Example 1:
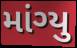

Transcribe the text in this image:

માંગ્યુ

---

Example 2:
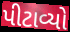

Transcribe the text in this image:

પીટાવ્યો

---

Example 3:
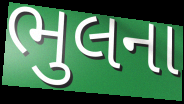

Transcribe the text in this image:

ભુલના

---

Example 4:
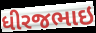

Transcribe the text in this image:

ધીરજભાઇ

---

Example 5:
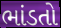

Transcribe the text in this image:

ભાંડતો